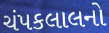
ચંપકલાલનો